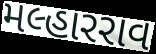
મલ્હારરાવ